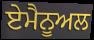
ਏਮੈਨੂਅਲ